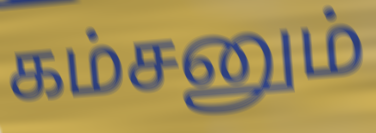
கம்சனும்